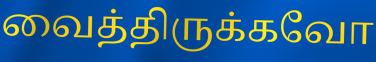
வைத்திருக்கவோ